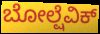
ಬೋಲ್ಷೆವಿಕ್